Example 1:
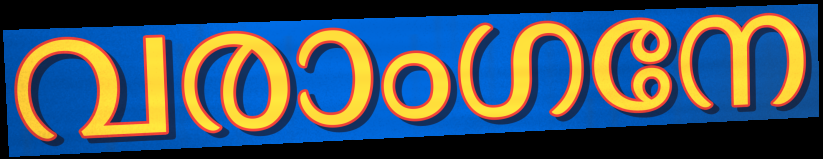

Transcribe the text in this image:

വരാംഗനേ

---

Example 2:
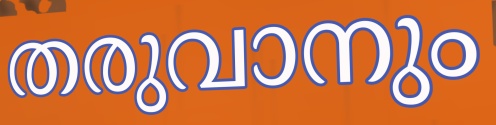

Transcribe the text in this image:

തരുവാനും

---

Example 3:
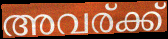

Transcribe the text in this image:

അവര്ക്ക്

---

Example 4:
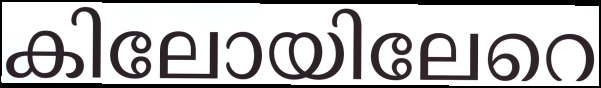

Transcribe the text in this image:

കിലോയിലേറെ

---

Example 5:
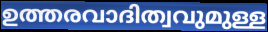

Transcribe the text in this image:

ഉത്തരവാദിത്വവുമുള്ള